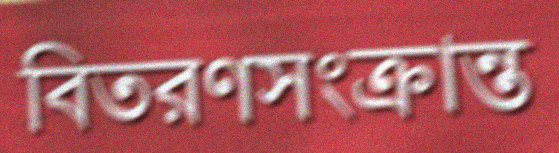
বিতরণসংক্রান্ত